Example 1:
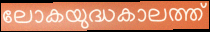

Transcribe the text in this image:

ലോകയുദ്ധകാലത്ത്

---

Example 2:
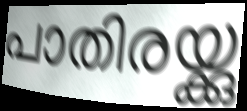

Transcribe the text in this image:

പാതിരയ്ക്കു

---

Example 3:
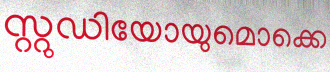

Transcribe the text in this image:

സ്റ്റുഡിയോയുമൊക്കെ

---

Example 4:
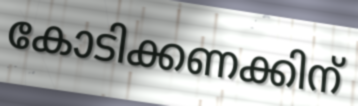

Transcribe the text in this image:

കോടിക്കണക്കിന്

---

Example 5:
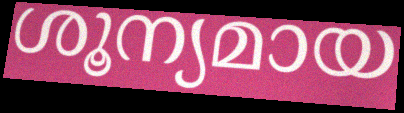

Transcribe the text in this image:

ശൂന്യമായ